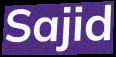
Sajid